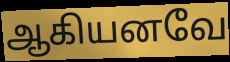
ஆகியனவே